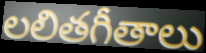
లలితగీతాలు